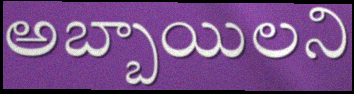
అబ్బాయిలని